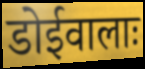
डोईवालाः